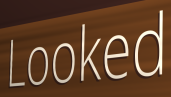
Looked